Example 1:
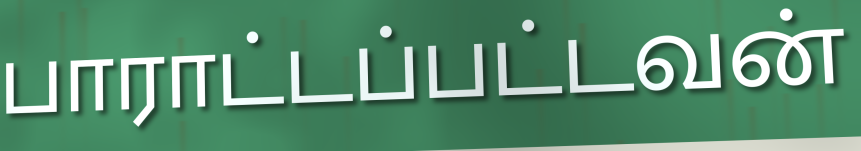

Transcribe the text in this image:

பாராட்டப்பட்டவன்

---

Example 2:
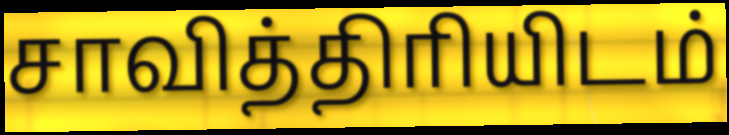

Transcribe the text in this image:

சாவித்திரியிடம்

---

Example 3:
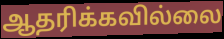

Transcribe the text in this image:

ஆதரிக்கவில்லை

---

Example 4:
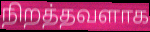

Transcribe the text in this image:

நிறத்தவளாக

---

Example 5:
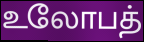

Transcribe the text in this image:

உலோபத்